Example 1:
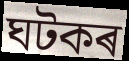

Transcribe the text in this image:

ঘটকৰ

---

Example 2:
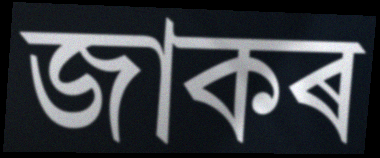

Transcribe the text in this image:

জাকৰ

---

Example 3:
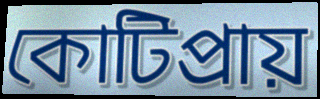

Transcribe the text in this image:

কোটিপ্ৰায়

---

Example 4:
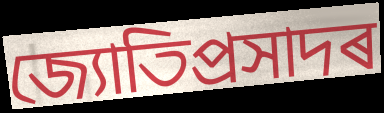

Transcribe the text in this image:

জ্যোতিপ্ৰসাদৰ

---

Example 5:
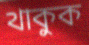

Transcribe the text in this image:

থাকুক